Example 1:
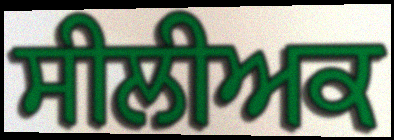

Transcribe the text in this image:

ਸੀਲੀਅਕ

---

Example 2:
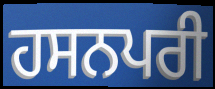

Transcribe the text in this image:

ਹਸਨਪਰੀ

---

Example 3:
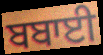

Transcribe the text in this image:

ਬਬਾਈ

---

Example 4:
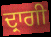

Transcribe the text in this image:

ਦ੍ਰਾਗੀ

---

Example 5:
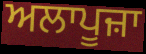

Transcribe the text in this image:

ਅਲਾਪੂਜ਼ਾ